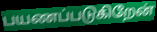
பயணப்படுகிறேன்